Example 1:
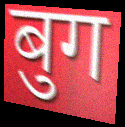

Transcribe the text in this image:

बुग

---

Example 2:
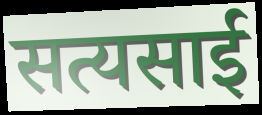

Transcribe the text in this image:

सत्यसाई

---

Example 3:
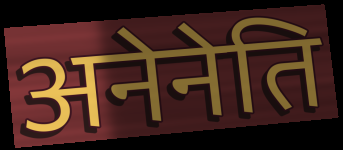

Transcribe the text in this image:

अनेनेति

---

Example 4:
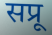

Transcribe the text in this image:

सप्रू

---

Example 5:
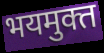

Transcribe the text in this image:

भयमुक्‍त